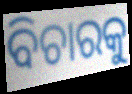
ବିଚାରକୁ